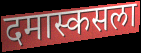
दमास्कसला